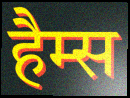
हैम्स